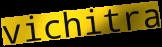
vichitra